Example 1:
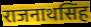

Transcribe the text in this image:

राजनाथसिंह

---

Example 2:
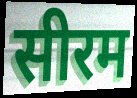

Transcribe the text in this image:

सीरम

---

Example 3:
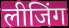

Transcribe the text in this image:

लीजिंग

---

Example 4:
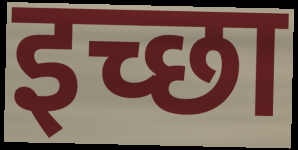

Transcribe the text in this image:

इच्छा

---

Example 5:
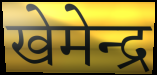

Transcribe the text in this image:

खेमेन्द्र